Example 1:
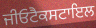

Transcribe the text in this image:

ਜੀਓਟੈਕਸਟਾਇਲ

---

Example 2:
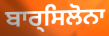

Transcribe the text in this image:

ਬਾਰ੍ਸਿਲੋਨਾ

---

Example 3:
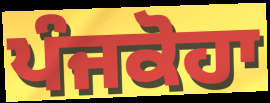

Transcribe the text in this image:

ਪੰਜਕੋਹਾ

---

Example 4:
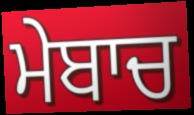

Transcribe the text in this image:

ਮੇਬਾਚ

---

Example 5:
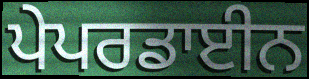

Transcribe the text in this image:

ਪੇਪਰਡਾਈਨ